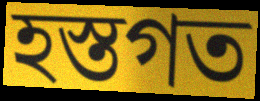
হস্তগত